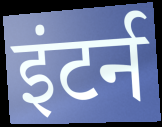
इंटर्न